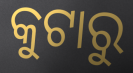
କୁଟାରୁ